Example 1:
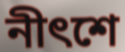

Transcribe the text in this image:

নীৎশে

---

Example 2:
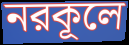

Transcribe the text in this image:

নরকূলে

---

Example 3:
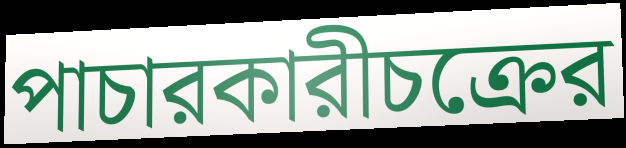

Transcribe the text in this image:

পাচারকারীচক্রের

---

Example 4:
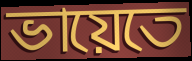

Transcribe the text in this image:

ভায়েতে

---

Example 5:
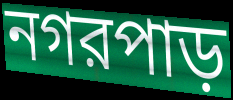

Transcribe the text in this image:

নগরপাড়